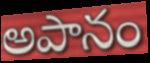
అపానం